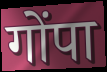
गोंपा